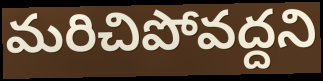
మరిచిపోవద్దని